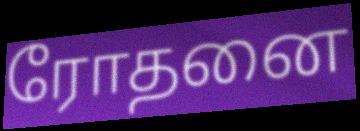
ரோதனை